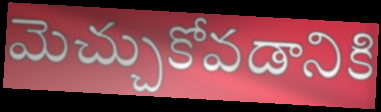
మెచ్చుకోవడానికి